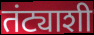
तंट्याशी